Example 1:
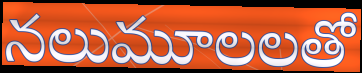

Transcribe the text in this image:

నలుమూలలతో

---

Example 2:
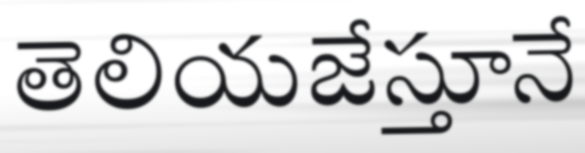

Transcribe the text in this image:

తెలియజేస్తూనే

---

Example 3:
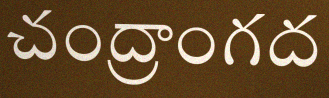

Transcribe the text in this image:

చంద్రాంగద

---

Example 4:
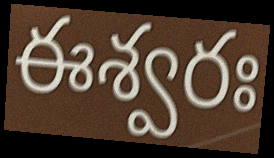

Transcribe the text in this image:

ఈశ్వరః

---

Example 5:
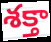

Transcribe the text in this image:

శక్తా